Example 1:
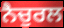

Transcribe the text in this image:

ਨੈਚੁਰਲ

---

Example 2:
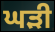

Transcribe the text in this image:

ਘਡ਼ੀ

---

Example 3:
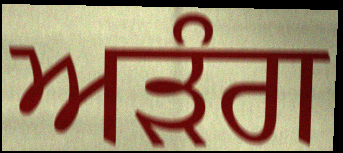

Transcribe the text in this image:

ਅੜੰਗ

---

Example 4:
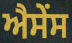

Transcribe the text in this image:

ਐਸੇਂਸ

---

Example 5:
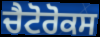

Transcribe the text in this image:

ਚੈਟੋਰੋਕਸ